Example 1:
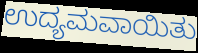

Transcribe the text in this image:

ಉದ್ಯಮವಾಯಿತು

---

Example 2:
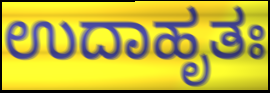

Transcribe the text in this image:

ಉದಾಹೃತಃ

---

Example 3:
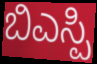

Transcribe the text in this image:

ಬಿಎಸ್ಪಿ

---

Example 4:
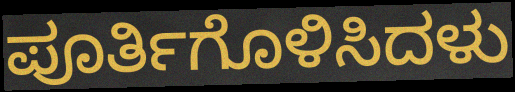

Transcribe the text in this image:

ಪೂರ್ತಿಗೊಳಿಸಿದಳು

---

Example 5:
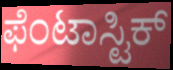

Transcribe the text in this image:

ಫೆಂಟಾಸ್ಟಿಕ್